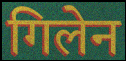
गिलेन